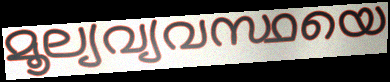
മൂല്യവ്യവസ്ഥയെ